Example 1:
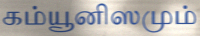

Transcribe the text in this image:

கம்யூனிஸமும்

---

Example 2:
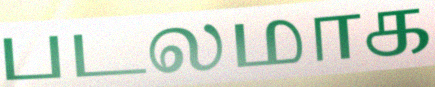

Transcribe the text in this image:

படலமாக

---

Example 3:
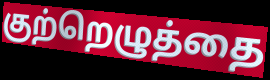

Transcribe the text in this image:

குற்றெழுத்தை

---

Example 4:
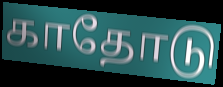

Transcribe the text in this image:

காதோடு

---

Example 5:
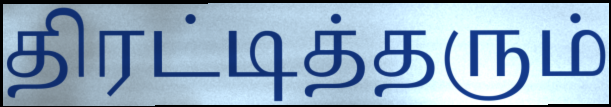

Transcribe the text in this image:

திரட்டித்தரும்